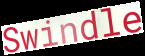
Swindle